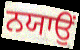
ਨਯਾਉਂ